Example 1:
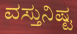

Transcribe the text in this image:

ವಸ್ತುನಿಷ್ಟ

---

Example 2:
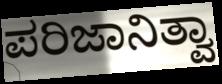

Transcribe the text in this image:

ಪರಿಜಾನಿತ್ವಾ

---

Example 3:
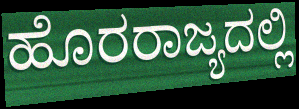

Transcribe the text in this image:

ಹೊರರಾಜ್ಯದಲ್ಲಿ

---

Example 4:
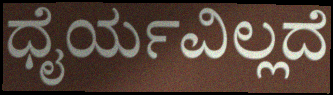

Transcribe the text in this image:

ಧೈರ್ಯವಿಲ್ಲದೆ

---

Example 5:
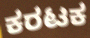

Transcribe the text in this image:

ಕರಟಕ